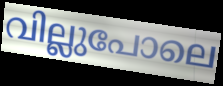
വില്ലുപോലെ